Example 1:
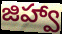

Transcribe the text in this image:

జిహ్వా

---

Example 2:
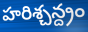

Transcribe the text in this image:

హరిశ్చన్ద్రం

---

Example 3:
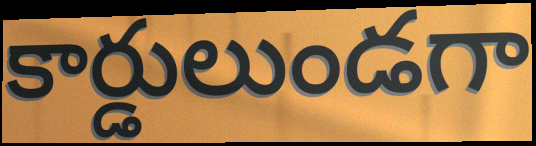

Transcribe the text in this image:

కార్డులుండగా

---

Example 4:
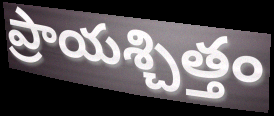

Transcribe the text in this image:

ప్రాయశ్చిత్తం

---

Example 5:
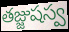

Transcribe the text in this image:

తజ్జుషస్వ